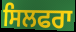
ਸਿਲਫਰਾ